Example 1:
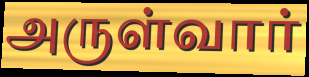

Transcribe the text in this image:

அருள்வார்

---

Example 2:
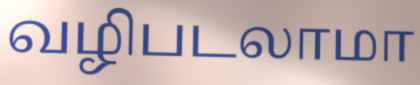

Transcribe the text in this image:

வழிபடலாமா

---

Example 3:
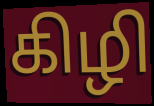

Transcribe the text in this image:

கிழி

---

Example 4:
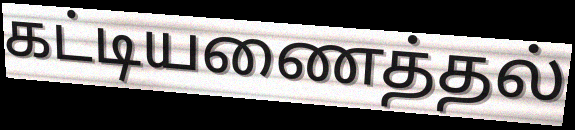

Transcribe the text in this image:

கட்டியணைத்தல்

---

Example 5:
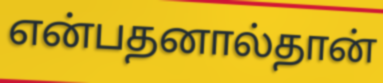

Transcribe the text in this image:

என்பதனால்தான்